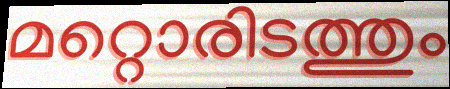
മറ്റൊരിടത്തും